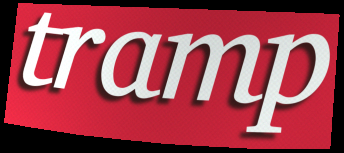
tramp